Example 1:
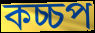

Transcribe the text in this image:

কচ্চপ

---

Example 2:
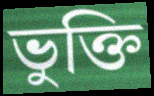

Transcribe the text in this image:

ভুক্তি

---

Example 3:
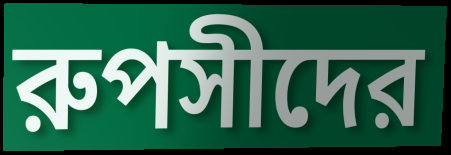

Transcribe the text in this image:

রুপসীদের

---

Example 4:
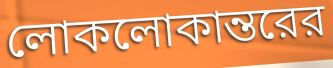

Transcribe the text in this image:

লোকলোকান্তরের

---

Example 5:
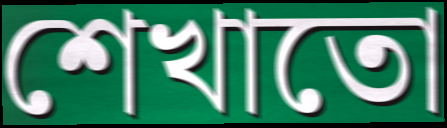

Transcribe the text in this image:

শেখাতো